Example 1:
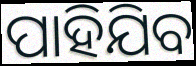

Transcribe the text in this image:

ପାହିଯିବ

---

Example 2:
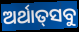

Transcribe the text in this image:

ଅର୍ଥାତ୍‌ସବୁ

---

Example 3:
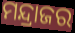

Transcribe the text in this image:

ମନ୍ଦ୍ରାଜର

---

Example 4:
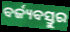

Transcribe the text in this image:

ବର୍ଜ୍ୟବସ୍ତୁର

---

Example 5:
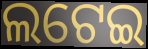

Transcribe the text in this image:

ଲଟେଇ